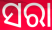
ସରା